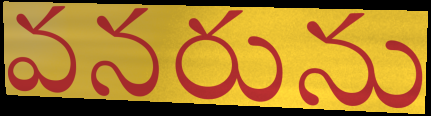
వనరును